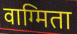
वाग्मिता